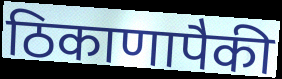
ठिकाणापैकी